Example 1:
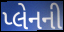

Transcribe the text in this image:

પ્લેનની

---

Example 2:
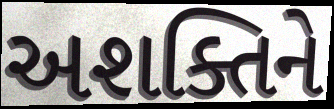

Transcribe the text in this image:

અશક્તિને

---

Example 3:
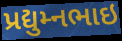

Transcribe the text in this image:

પ્રદ્યુમ્નભાઇ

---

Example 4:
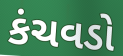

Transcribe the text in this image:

કંચવડો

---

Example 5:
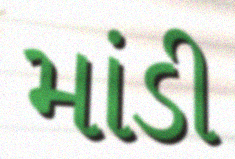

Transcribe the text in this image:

માંડી